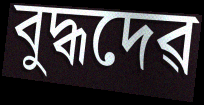
বুদ্ধদেৱ